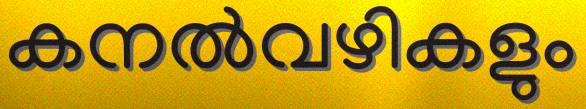
കനൽവഴികളും